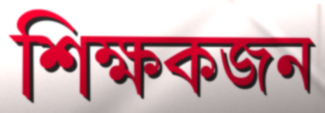
শিক্ষকজন